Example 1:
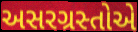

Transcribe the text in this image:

અસરગ્રસ્તોએ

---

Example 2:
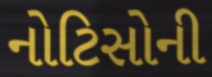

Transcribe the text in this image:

નોટિસોની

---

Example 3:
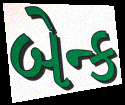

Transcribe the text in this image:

બેન્ક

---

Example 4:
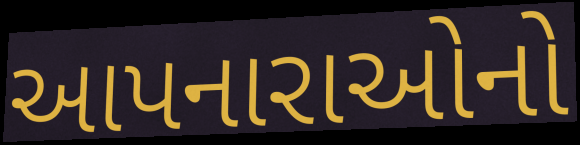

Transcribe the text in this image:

આપનારાઓનો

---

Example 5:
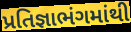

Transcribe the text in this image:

પ્રતિજ્ઞાભંગમાંથી